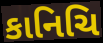
કાનિચિ